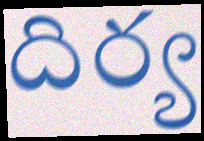
దిర్య